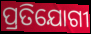
ପ୍ରତିଯୋଗୀ